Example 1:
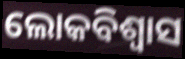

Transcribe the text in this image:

ଲୋକବିଶ୍ୱାସ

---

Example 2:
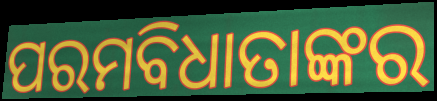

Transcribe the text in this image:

ପରମବିଧାତାଙ୍କର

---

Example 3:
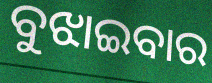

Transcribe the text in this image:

ବୁଝାଇବାର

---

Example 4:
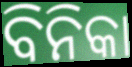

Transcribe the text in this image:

ବିନିକା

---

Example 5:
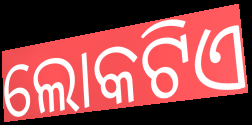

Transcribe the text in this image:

ଲୋକଟିଏ